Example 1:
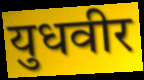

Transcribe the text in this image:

युधवीर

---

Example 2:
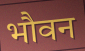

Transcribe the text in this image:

भौवन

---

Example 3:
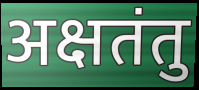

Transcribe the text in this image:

अक्षतंतु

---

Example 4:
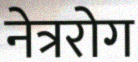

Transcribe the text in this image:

नेत्ररोग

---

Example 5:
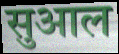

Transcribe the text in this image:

सुआल